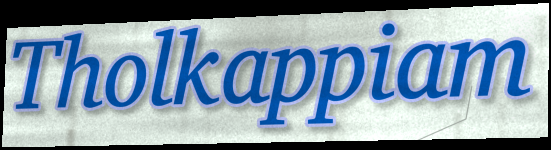
Tholkappiam